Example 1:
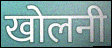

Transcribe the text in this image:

खोलनी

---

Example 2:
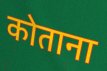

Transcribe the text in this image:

कोताना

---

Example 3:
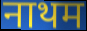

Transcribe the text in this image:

नाथम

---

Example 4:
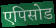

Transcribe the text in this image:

एपिसोड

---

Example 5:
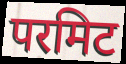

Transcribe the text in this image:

परमिट